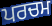
ਪਰਚਮ